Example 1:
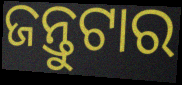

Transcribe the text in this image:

ଜନ୍ତୁଟାର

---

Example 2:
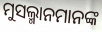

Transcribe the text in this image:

ମୁସଲ୍ମାନମାନଙ୍କ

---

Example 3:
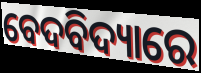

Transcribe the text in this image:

ବେଦବିଦ୍ୟାରେ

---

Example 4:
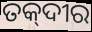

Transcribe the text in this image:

ତକ୍‌ଦୀର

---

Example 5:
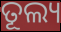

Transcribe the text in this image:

ତୂଲ୍ୟ